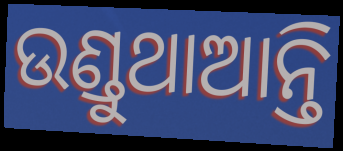
ଉଣ୍ଡୁଥାଆନ୍ତି